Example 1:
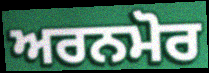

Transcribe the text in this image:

ਅਰਨਮੋਰ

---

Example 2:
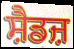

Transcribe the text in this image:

ਸ਼ੈਡਜ਼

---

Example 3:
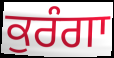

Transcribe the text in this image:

ਕੁਰੰਗਾ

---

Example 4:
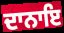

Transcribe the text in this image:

ਦਾਨਾਇ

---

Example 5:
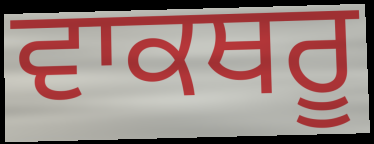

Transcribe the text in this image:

ਵਾਕਥਰੂ